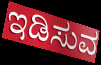
ಇಡಿಸುವ